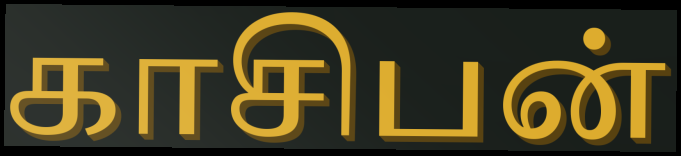
காசிபன்